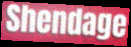
Shendage